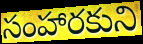
సంహారకుని